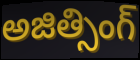
అజిత్సింగ్